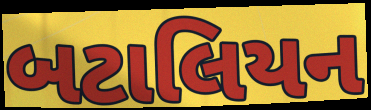
બટાલિયન